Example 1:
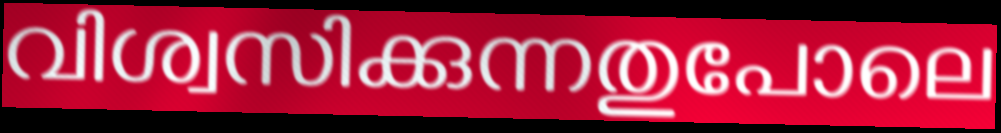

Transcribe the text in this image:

വിശ്വസിക്കുന്നതുപോലെ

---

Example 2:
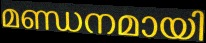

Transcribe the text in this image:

മണ്ഡനമായി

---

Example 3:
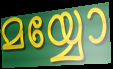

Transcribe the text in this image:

മയ്യോ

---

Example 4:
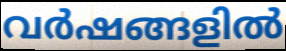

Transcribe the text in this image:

വർഷങ്ങളിൽ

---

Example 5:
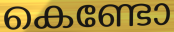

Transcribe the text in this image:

കെണ്ടോ